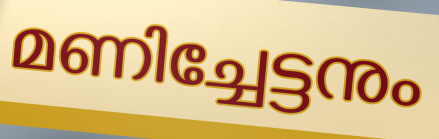
മണിച്ചേട്ടനും